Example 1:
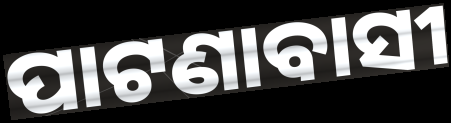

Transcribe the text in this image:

ପାଟଣାବାସୀ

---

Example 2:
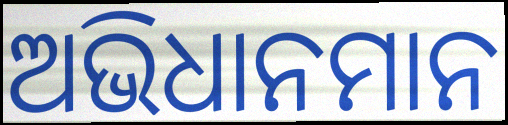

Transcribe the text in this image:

ଅଭିଧାନମାନ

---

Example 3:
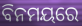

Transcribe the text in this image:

ବିନମୟରେ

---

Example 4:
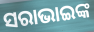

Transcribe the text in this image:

ସରାଭାଇଙ୍କ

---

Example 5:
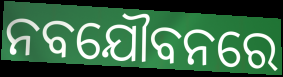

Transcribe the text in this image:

ନବଯୌବନରେ